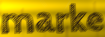
marke